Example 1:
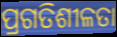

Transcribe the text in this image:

ପ୍ରଗତିଶୀଳତା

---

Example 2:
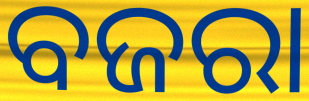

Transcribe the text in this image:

ବଜରା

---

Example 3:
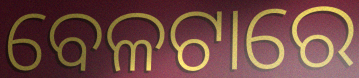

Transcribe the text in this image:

ବେଳଟାରେ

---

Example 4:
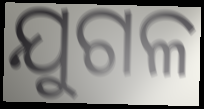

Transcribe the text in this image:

ଯୁଗଳ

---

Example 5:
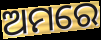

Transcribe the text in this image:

ଅମରେ